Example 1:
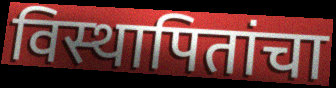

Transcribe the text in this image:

विस्थापितांचा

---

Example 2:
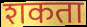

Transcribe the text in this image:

शकता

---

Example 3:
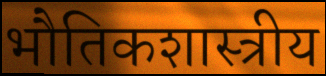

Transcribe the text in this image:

भौतिकशास्त्रीय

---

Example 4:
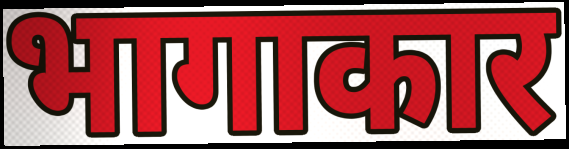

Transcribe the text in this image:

भागाकार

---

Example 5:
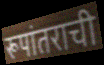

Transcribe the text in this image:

रूपांतराची